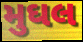
મુઘલ